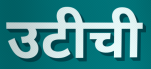
उटीची